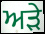
ਅੜੇ